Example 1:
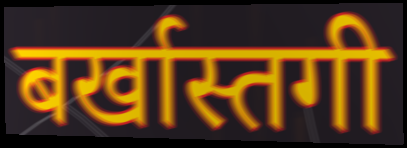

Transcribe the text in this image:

बर्खास्तगी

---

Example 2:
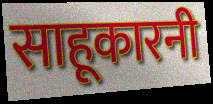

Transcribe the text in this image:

साहूकारनी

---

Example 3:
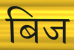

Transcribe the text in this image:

बिज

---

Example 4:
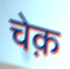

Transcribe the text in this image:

चेक़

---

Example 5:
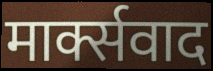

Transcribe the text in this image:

मार्क्सवाद